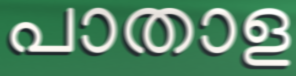
പാതാള